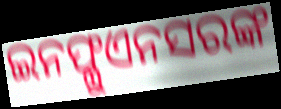
ଇନଫ୍ଳୁଏନସରଙ୍କ